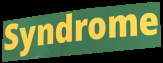
Syndrome